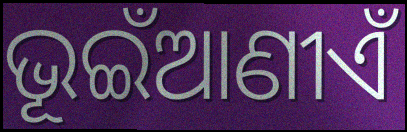
ଭୂଇଁଆଣୀଏଁ